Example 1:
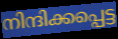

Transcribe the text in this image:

നിന്ദിക്കപ്പെട്ട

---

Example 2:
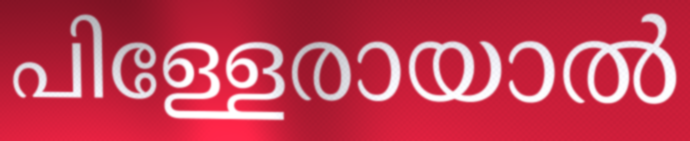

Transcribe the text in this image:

പിള്ളേരായാൽ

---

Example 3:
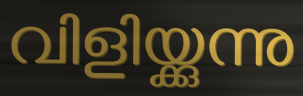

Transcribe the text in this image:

വിളിയ്ക്കുന്നു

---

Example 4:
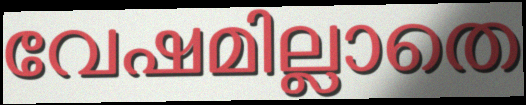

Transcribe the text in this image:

വേഷമില്ലാതെ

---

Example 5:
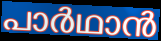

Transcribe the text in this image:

പാർഥാൻ